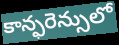
కాన్ఫరెన్సులో